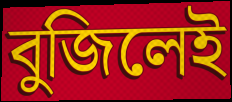
বুজিলেই